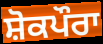
ਸ਼ੋਕਪੌਰਾ